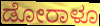
ಡೋರಾಳೂ